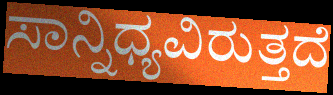
ಸಾನ್ನಿಧ್ಯವಿರುತ್ತದೆ